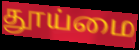
தூய்மை